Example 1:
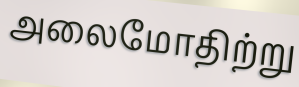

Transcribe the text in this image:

அலைமோதிற்று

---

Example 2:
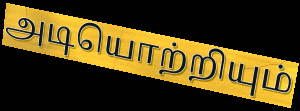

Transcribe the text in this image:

அடியொற்றியும்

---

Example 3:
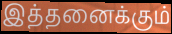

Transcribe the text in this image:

இத்தனைக்கும்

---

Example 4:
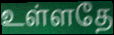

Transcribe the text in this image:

உள்ளதே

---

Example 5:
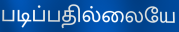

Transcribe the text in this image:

படிப்பதில்லையே